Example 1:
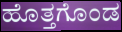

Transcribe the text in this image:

ಹೊತ್ತಗೊಂಡ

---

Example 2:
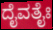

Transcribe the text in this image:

ದೈವತೈಃ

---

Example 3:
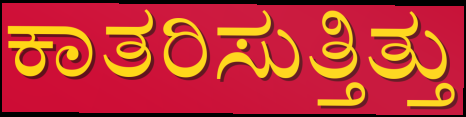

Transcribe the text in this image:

ಕಾತರಿಸುತ್ತಿತ್ತು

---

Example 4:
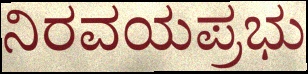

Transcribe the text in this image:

ನಿರವಯಪ್ರಭು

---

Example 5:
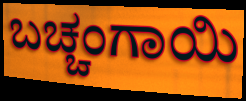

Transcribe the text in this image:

ಬಚ್ಚಂಗಾಯಿ